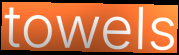
towels